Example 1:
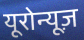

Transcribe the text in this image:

यूरोन्यूज़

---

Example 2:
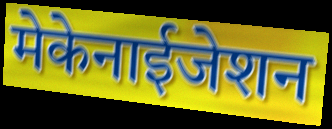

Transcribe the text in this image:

मेकेनाईजेशन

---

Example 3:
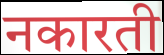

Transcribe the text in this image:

नकारती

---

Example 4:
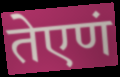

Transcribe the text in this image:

तेएणं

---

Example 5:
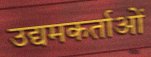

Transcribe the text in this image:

उद्यमकर्ताओं